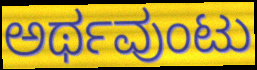
ಅರ್ಥವುಂಟು